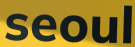
seoul